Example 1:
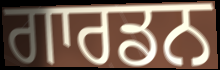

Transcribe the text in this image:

ਗਾਰਡਨ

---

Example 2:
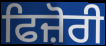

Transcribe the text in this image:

ਫਿਜ਼ੋਰੀ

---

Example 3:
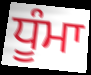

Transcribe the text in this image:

ਧੂੰਮਾ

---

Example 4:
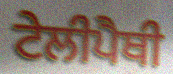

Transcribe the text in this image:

ਟੇਲੀਪੈਥੀ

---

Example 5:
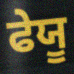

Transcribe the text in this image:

ਫੇਯੂ